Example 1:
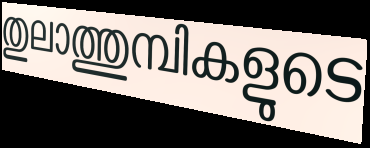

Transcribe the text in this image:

തുലാത്തുമ്പികളുടെ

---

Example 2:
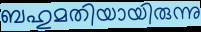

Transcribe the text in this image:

ബഹുമതിയായിരുന്നു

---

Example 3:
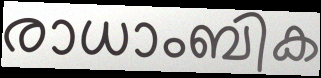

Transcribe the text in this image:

രാധാംബിക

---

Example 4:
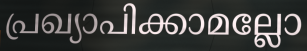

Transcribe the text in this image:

പ്രഖ്യാപിക്കാമല്ലോ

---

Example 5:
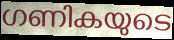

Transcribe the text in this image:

ഗണികയുടെ